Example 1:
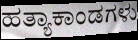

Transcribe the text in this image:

ಹತ್ಯಾಕಾಂಡಗಳು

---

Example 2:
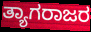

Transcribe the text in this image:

ತ್ಯಾಗರಾಜರ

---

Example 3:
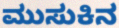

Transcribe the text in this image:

ಮುಸುಕಿನ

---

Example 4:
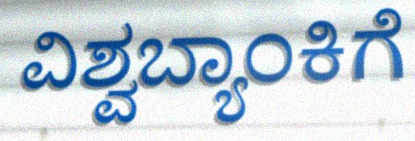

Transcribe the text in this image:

ವಿಶ್ವಬ್ಯಾಂಕಿಗೆ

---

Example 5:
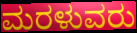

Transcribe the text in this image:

ಮರಳುವರು